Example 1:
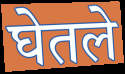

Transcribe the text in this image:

घेतले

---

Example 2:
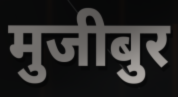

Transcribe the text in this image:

मुजीबुर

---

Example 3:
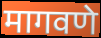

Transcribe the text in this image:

मागवणे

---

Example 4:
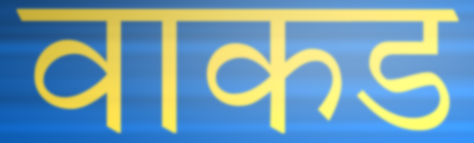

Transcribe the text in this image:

वाकड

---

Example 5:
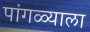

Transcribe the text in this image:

पांगळ्याला